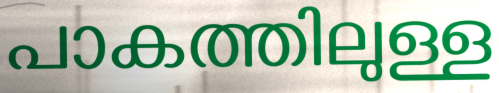
പാകത്തിലുള്ള